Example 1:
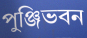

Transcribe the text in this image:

পুঞ্জিভবন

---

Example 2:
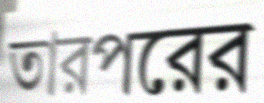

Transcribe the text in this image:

তারপরের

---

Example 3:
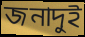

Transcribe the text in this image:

জনাদুই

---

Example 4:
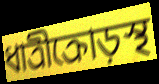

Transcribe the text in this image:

ধাত্রীক্রোড়স্থ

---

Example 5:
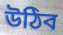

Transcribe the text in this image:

উঠিব